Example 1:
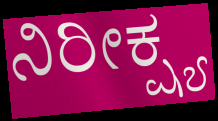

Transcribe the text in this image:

ನಿರೀಕ್ಷ್ಯ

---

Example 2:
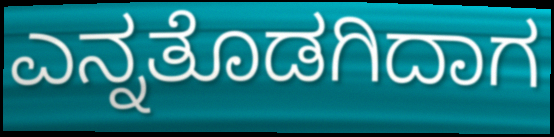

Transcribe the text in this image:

ಎನ್ನತೊಡಗಿದಾಗ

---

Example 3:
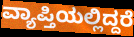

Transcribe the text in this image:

ವ್ಯಾಪ್ತಿಯಲ್ಲಿದ್ದರೆ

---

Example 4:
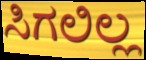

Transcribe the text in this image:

ಸಿಗಲಿಲ್ಲ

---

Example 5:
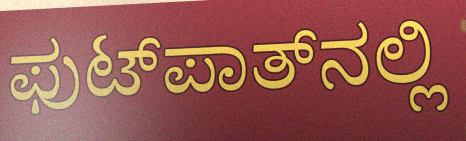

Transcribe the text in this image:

ಫುಟ್‌ಪಾತ್‌ನಲ್ಲಿ